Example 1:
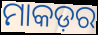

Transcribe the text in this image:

ମାକଡ଼ର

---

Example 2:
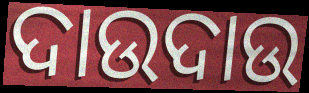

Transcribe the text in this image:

ଦାଉଦାଉ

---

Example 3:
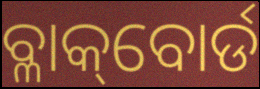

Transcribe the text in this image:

ବ୍ଳାକ୍‌ବୋର୍ଡ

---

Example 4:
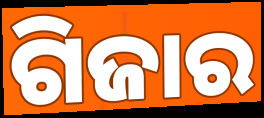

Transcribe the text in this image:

ଗିଜାର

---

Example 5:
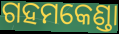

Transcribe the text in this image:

ଗହମକେଣ୍ଡା